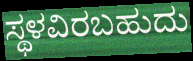
ಸ್ಥಳವಿರಬಹುದು